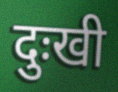
दुःखी